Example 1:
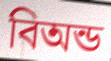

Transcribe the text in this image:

বিঅন্ড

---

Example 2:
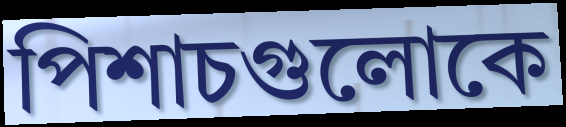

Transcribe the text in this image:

পিশাচগুলোকে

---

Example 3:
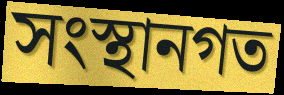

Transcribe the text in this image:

সংস্থানগত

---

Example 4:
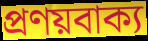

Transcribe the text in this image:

প্রণয়বাক্য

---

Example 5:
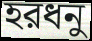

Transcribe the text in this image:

হরধনু